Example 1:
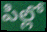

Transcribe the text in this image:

పిల్లో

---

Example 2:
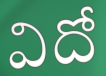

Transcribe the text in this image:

విదో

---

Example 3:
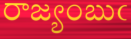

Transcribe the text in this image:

రాజ్యంబుఁ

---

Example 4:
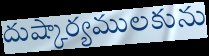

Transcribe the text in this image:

దుష్కార్యములకును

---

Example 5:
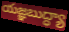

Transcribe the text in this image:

యజ్ఞబుద్ధ్యా